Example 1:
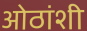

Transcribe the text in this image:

ओठांशी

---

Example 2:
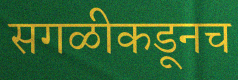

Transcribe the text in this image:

सगळीकडूनच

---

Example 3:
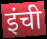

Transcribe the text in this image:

इंची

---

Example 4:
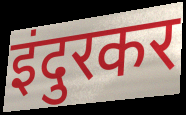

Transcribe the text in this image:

इंदुरकर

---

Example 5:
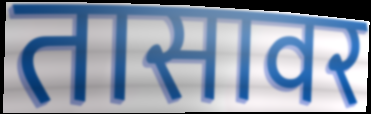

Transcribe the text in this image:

तासावर